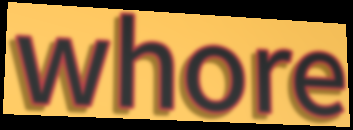
whore